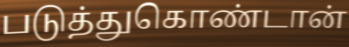
படுத்துகொண்டான்